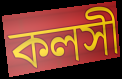
কলসী